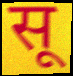
सू